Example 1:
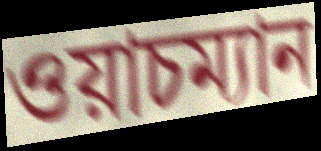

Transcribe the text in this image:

ওয়াচম্যান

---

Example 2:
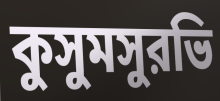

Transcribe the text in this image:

কুসুমসুরভি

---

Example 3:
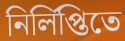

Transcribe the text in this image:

নির্লিপ্তিতে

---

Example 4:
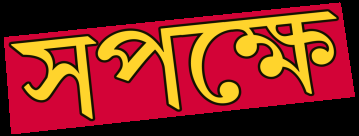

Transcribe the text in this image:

সপক্ষে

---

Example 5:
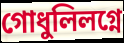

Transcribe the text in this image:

গোধুলিলগ্নে